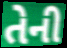
તેની